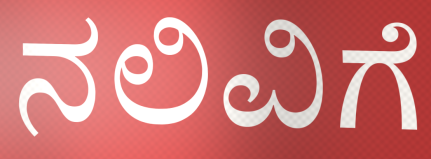
ನಲಿವಿಗೆ